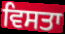
ਵਿਸਤਾ